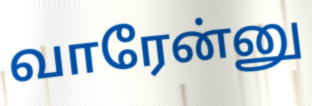
வாரேன்னு